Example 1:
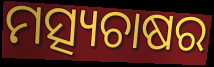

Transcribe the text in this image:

ମତ୍ସ୍ୟଚାଷର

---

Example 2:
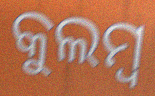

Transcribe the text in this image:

କୁଲମ୍ବ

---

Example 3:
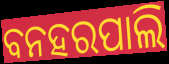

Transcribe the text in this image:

ବନହରପାଲି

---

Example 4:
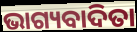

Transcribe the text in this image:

ଭାଗ୍ୟବାଦିତା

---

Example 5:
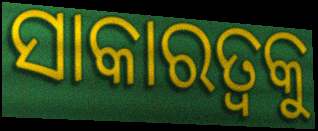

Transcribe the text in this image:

ସାକାରତ୍ଵକୁ